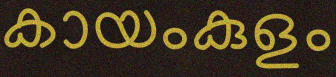
കായംകുളം